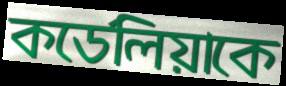
কর্ডেলিয়াকে